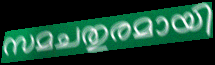
സമചതുരമായി